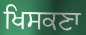
ਖਿਸਕਣਾ